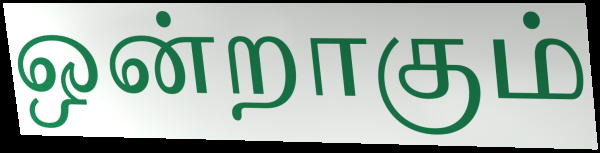
ஒன்றாகும்